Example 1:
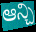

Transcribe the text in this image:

ఆన్చి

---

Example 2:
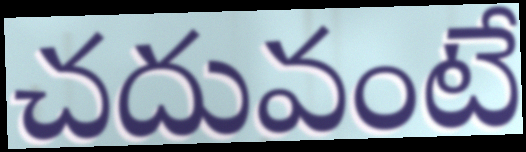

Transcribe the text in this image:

చదువంటే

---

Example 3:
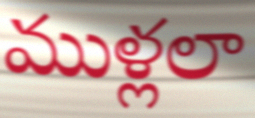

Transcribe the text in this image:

ముళ్లలా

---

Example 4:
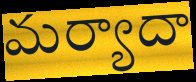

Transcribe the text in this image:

మర్యాదా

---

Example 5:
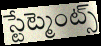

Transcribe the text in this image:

స్టేట్మెంట్స్